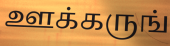
ஊக்கருங்